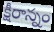
క్షీరాన్నం